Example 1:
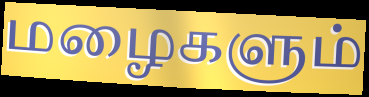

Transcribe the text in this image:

மழைகளும்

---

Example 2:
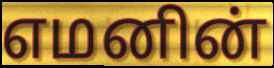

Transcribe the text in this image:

எமனின்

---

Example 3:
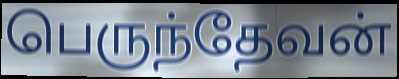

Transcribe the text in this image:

பெருந்தேவன்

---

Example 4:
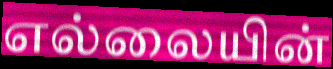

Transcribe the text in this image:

எல்லையின்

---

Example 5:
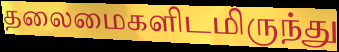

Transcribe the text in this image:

தலைமைகளிடமிருந்து